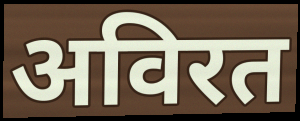
अविरत